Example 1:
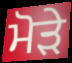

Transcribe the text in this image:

ਮੋੜੇ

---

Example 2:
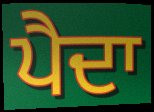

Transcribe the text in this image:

ਪੈਦਾ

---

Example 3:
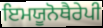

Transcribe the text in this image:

ਇਮਯੂਨੋਥੈਰੇਪੀ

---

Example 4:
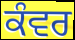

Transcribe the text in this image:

ਕੰਵਰ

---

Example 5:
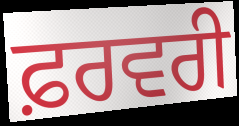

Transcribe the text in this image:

ਫ਼ਰਵਰੀ